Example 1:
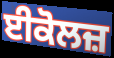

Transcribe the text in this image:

ਈਕੋਲਜ਼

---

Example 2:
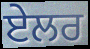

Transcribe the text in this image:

ਏਲਰ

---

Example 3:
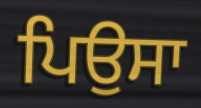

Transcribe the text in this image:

ਪਿਉਸਾ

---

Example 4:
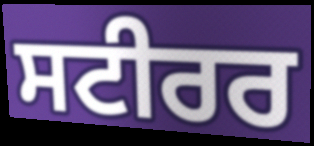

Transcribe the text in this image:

ਸਟੀਰਰ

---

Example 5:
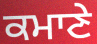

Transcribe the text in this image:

ਕਮਾਣੇ